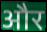
और